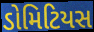
ડોમિટિયસ